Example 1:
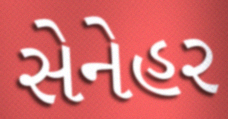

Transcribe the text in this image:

સેનેહર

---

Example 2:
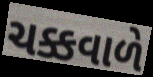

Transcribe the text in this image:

ચક્કવાળે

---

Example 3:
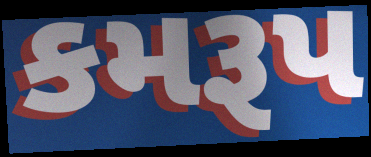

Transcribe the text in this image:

કમરૂપ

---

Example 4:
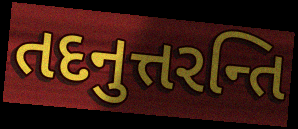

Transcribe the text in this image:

તદનુત્તરન્તિ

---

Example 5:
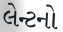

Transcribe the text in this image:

લેન્ટનો